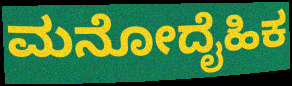
ಮನೋದೈಹಿಕ